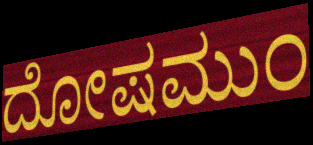
ದೋಷಮುಂ